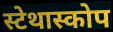
स्टेथास्कोप